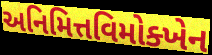
અનિમિત્તવિમોક્ખેન